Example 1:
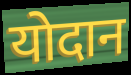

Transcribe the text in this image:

योदान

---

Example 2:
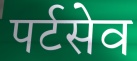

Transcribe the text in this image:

पर्टसेव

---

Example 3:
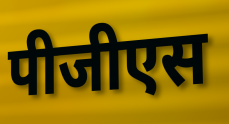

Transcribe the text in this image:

पीजीएस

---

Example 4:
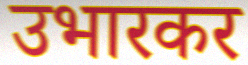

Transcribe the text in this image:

उभारकर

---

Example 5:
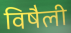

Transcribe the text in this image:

विषैली